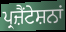
ਪ੍ਰਜ਼ੈਂਟੇਸ਼ਨਾਂ